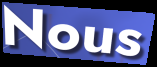
Nous